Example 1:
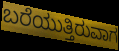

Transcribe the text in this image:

ಬರೆಯುತ್ತಿರುವಾಗ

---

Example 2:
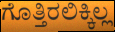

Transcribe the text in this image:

ಗೊತ್ತಿರಲಿಕ್ಕಿಲ್ಲ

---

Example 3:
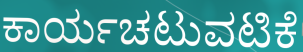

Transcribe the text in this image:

ಕಾರ್ಯಚಟುವಟಿಕೆ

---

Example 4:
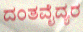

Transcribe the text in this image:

ದಂತವೈದ್ಯರ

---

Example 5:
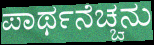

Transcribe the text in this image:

ಪಾರ್ಥನೆಚ್ಚನು